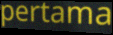
pertama